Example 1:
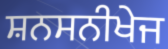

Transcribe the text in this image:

ਸ਼ਨਸਨੀਖੇਜ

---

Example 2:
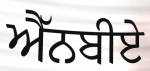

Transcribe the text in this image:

ਐੱਨਬੀਏ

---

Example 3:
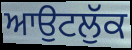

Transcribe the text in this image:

ਆਉਟਲੁੱਕ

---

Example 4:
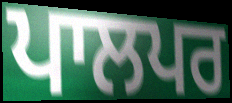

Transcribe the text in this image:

ਪਾਲਪਰ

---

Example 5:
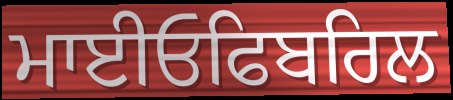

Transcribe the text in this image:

ਮਾਈਓਫਿਬਰਿਲ